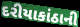
દરીયાકાંઠાની